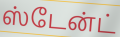
ஸ்டேன்ட்